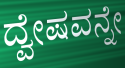
ದ್ವೇಷವನ್ನೇ